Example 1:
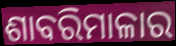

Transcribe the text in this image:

ଶାବରିମାଳାର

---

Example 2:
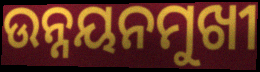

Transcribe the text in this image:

ଉନ୍ନୟନମୁଖୀ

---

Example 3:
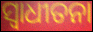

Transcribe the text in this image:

ସ୍ବାଧୀତନା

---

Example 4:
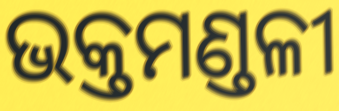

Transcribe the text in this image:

ଭକ୍ତମଣ୍ଡଳୀ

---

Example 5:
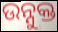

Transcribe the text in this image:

ଉନ୍ନୁକ୍ତ